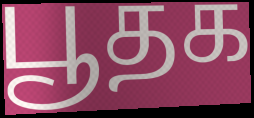
பூதக